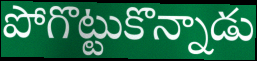
పోగొట్టుకొన్నాడు